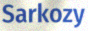
Sarkozy